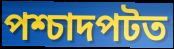
পশ্চাদপটত